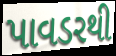
પાવડરથી